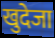
खुदेजा